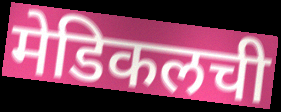
मेडिकलची